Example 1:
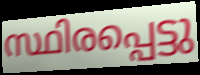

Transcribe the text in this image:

സ്ഥിരപ്പെട്ടു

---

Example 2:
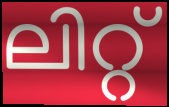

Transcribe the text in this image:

ലിറ്റ്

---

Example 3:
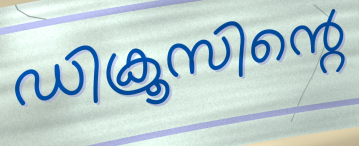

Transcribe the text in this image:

ഡിക്രൂസിന്റെ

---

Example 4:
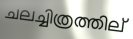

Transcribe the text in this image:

ചലച്ചിത്രത്തില്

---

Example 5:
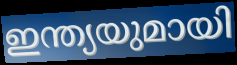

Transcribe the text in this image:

ഇന്ത്യയുമായി